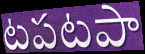
టపటపా